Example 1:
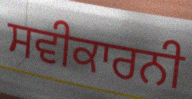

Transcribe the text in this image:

ਸਵੀਕਾਰਨੀ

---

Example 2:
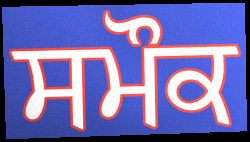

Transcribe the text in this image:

ਸਮੌਕ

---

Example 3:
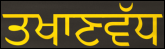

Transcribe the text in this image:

ਤਖਾਣਵੱਧ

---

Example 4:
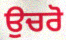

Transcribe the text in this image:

ਉਚਰੋ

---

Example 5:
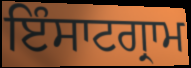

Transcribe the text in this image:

ਇੰਸਾਟਗ੍ਰਾਮ